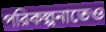
পরিকল্পনাতেও